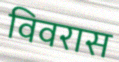
विवरास